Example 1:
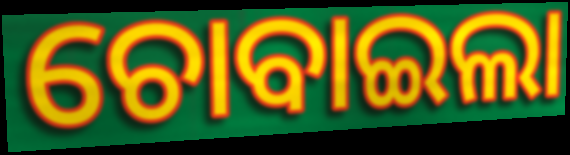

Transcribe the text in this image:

ଚୋବାଇଲା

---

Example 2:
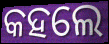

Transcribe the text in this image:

କହଲେ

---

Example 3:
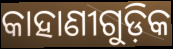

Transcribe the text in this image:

କାହାଣୀଗୁଡ଼ିକ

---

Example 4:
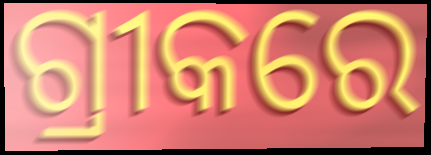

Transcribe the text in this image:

ଗ୍ରୀକରେ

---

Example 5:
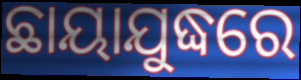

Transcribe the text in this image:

ଛାୟାଯୁଦ୍ଧରେ